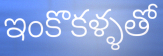
ఇంకొకళ్ళతో